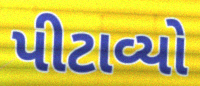
પીટાવ્યો